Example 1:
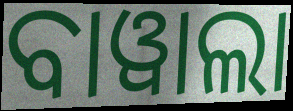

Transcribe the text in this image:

ବାୱାଲା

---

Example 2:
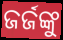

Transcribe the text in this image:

ଜର୍ଜଙ୍କୁ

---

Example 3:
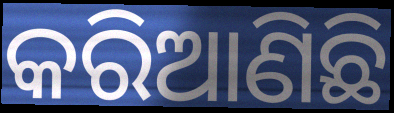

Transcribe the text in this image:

କରିଆଣିଛି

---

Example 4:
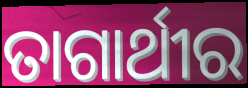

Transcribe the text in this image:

ତାଗାର୍ଥୀର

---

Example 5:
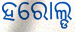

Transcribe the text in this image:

ହରୋଲ୍ଡ